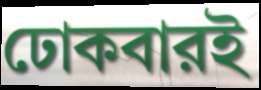
ঢোকবারই